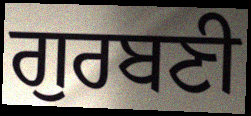
ਗੁਰਬਣੀ